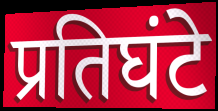
प्रतिघंटे